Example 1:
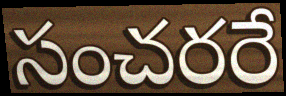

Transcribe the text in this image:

సంచరరే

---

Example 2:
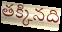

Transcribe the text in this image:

తక్కినది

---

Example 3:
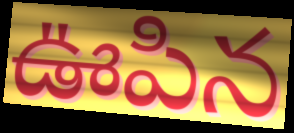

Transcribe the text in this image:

ఊపిన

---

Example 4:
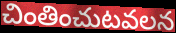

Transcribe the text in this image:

చింతించుటవలన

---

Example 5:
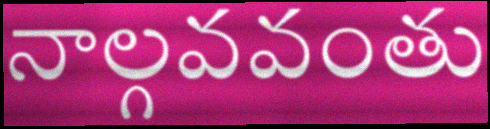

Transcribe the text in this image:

నాల్గవవంతు